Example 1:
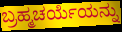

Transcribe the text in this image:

ಬ್ರಹ್ಮಚರ್ಯೆಯನ್ನು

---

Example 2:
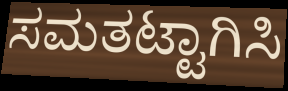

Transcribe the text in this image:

ಸಮತಟ್ಟಾಗಿಸಿ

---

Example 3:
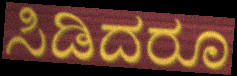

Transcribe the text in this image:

ಸಿಡಿದರೂ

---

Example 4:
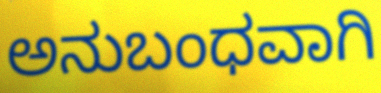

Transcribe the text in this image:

ಅನುಬಂಧವಾಗಿ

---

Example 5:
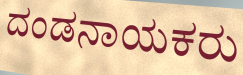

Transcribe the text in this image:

ದಂಡನಾಯಕರು